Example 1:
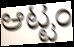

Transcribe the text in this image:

ಆಟ್ಟಂ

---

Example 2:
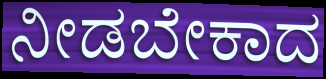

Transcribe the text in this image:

ನೀಡಬೇಕಾದ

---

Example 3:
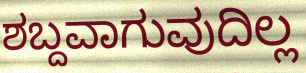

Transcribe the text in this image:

ಶಬ್ದವಾಗುವುದಿಲ್ಲ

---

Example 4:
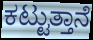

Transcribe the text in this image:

ಕಟ್ಟುತ್ತಾನೆ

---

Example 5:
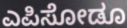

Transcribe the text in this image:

ಎಪಿಸೋಡೂ